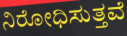
ನಿರೋಧಿಸುತ್ತವೆ